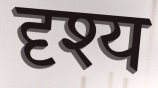
दृश्‍य